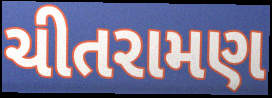
ચીતરામણ